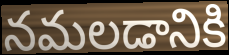
నమలడానికి